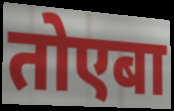
तोएबा